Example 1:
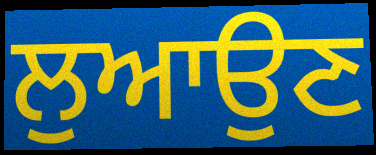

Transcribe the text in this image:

ਲੁਆਉਣ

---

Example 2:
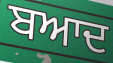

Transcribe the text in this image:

ਬਆਦ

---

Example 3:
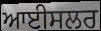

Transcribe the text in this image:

ਆਈਸਲਰ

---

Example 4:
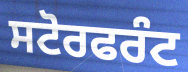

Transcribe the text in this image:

ਸਟੋਰਫਰੰਟ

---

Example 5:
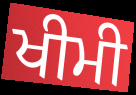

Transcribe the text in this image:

ਖੀਮੀ